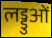
लड्डुओं